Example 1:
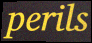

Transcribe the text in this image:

perils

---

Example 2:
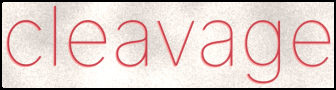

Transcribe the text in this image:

cleavage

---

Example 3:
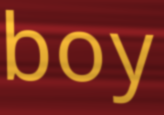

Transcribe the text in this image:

boy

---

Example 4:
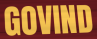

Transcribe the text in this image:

GOVIND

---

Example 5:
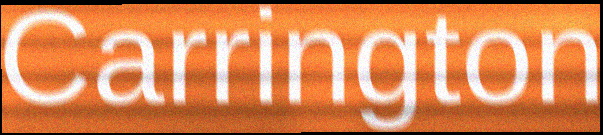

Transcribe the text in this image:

Carrington